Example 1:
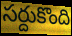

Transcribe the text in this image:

సర్దుకొంది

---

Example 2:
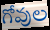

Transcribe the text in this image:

గోవుల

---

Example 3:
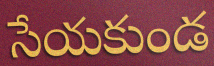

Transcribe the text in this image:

సేయకుండ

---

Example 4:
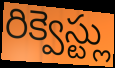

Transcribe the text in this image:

రిక్వెస్ట్లు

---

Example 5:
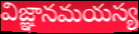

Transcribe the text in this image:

విజ్ఞానమయస్య